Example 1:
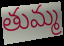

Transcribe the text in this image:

తుమ్మ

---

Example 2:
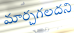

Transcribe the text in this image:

మార్చగలదని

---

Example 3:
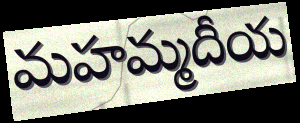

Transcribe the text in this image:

మహమ్మదీయ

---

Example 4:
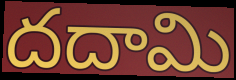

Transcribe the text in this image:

దదామి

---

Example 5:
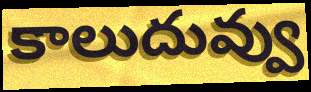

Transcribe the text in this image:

కాలుదువ్వు